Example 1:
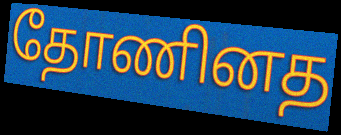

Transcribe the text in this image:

தோணினத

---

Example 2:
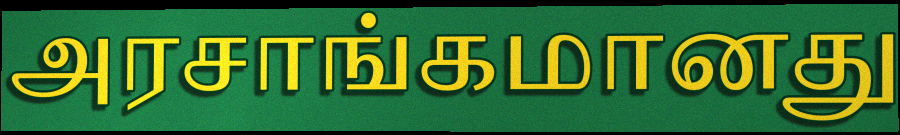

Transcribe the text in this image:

அரசாங்கமானது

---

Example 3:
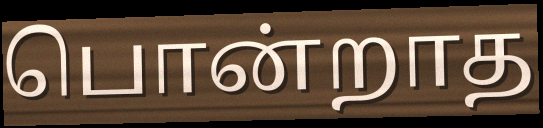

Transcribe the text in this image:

பொன்றாத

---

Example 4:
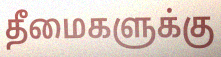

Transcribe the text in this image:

தீமைகளுக்கு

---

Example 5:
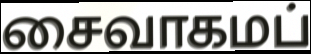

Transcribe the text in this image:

சைவாகமப்